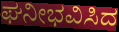
ಘನೀಭವಿಸಿದ